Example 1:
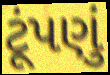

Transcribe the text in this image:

ટૂંપણું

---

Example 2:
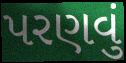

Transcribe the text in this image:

પરણવું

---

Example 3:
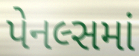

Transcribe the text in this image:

પેનલ્સમાં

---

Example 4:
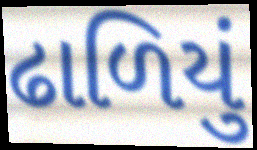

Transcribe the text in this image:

ઢાળિયું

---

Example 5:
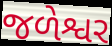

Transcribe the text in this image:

જળેશ્વર